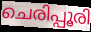
ചെരിപ്പൂരി